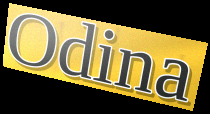
Odina